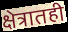
क्षेत्रातही